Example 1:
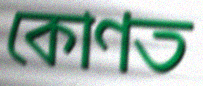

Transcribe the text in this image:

কোণত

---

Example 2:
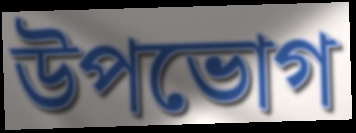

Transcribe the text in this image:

উপভোগ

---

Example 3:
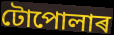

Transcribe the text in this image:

টোপোলাৰ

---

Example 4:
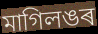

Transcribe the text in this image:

মাগিলঙৰ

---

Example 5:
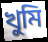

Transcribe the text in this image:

খুমি